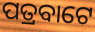
ପତ୍ରବାଟେ